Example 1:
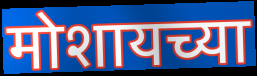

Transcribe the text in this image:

मोशायच्या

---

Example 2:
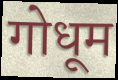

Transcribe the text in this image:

गोधूम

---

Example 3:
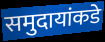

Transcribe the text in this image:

समुदायांकडे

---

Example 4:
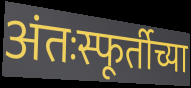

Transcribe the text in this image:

अंतःस्फूर्तीच्या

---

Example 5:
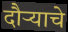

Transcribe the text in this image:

दौर्‍याचे